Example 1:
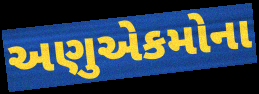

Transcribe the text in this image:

અણુએકમોના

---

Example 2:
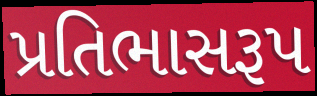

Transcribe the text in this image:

પ્રતિભાસરૂપ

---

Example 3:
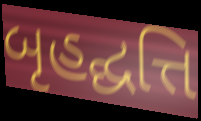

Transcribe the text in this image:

બૃહદ્ઘત્તિ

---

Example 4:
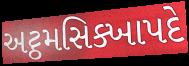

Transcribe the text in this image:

અટ્ઠમસિક્ખાપદે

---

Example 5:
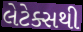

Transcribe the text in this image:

લેટેક્સથી